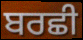
ਬਰਛੀ